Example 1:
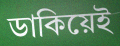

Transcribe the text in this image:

ডাকিয়েই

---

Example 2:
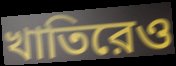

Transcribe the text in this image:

খাতিরেও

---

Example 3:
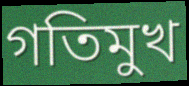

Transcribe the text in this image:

গতিমুখ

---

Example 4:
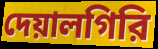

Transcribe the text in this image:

দেয়ালগিরি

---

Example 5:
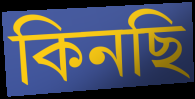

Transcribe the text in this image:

কিনছি